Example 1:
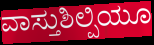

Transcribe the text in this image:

ವಾಸ್ತುಶಿಲ್ಪಿಯೂ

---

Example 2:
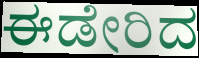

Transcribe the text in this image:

ಈಡೇರಿದ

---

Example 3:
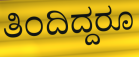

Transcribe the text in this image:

ತಿಂದಿದ್ದರೂ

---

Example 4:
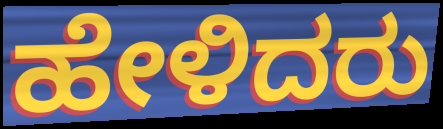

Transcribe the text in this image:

ಹೇಳಿದರು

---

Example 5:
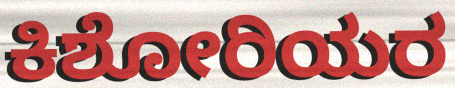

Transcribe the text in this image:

ಕಿಶೋರಿಯರ